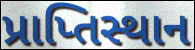
પ્રાપ્તિસ્થાન